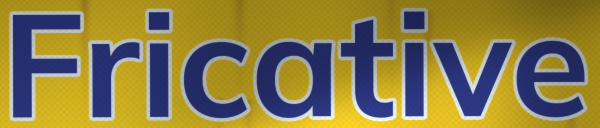
Fricative